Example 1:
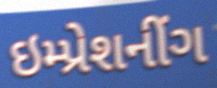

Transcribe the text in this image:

ઇમ્પ્રેશનીંગ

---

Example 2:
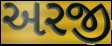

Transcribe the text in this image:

અરજી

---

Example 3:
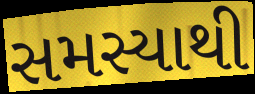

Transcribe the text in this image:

સમસ્યાથી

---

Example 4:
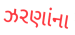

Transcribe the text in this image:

ઝરણાંના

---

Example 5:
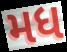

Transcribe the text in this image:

મધ